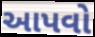
આપવો